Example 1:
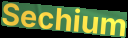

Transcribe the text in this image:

Sechium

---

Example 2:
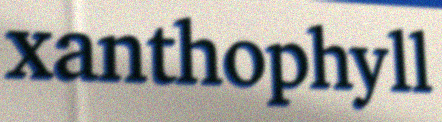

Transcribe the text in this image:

xanthophyll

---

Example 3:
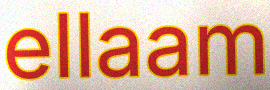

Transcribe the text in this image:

ellaam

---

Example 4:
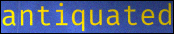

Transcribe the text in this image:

antiquated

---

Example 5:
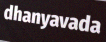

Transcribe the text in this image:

dhanyavada